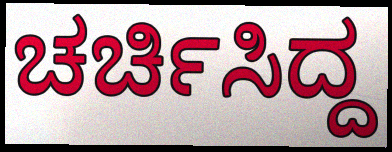
ಚರ್ಚಿಸಿದ್ದ